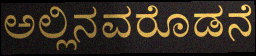
ಅಲ್ಲಿನವರೊಡನೆ